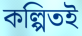
কল্পিতই